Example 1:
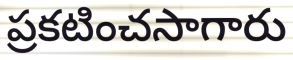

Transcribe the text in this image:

ప్రకటించసాగారు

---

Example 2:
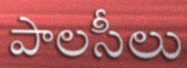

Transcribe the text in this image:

పాలసీలు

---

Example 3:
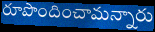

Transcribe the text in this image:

రూపొందించామన్నారు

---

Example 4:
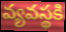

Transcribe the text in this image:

వ్యవస్థకి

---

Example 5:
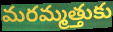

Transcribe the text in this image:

మరమ్మత్తుకు